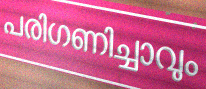
പരിഗണിച്ചാവും